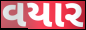
વયાર